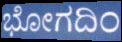
ಭೋಗದಿಂ